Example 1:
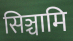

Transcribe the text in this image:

सिञ्चामि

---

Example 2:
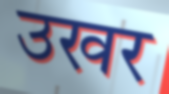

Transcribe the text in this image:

उखर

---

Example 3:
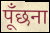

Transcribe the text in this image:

पूँछना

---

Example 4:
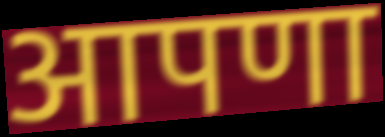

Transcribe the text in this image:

आपणा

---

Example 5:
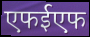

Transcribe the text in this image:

एफईएफ